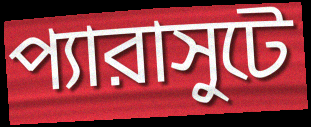
প্যারাসুটে